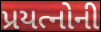
પ્રયત્નોની